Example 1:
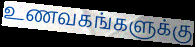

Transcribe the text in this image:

உணவகங்களுக்கு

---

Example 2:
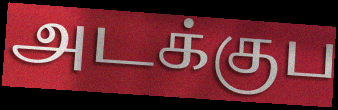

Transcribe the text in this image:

அடக்குப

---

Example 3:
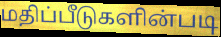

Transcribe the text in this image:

மதிப்பீடுகளின்படி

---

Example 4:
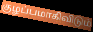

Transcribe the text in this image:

குழப்பமாகிவிடும்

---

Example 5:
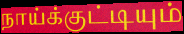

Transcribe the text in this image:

நாய்க்குட்டியும்